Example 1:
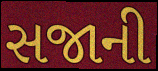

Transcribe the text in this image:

સજાની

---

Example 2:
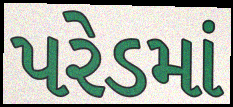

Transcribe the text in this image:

પરેડમાં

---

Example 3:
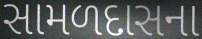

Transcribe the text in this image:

સામળદાસના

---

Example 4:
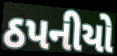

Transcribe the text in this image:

ઠપનીયો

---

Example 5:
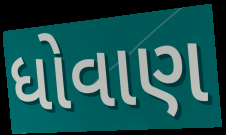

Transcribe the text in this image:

ધોવાણ